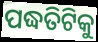
ପଦ୍ଧତିଟିକୁ